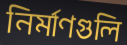
নির্মাণগুলি